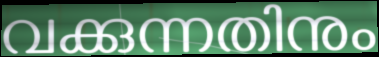
വക്കുന്നതിനും